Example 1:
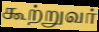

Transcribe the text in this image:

கூற்றுவர்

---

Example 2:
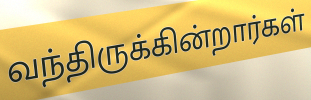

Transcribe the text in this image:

வந்திருக்கின்றார்கள்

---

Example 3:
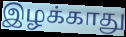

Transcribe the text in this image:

இழக்காது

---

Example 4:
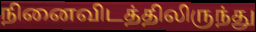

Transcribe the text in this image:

நினைவிடத்திலிருந்து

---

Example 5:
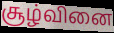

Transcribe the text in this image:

சூழ்வினை